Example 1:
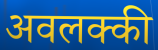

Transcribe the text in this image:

अवलक्की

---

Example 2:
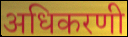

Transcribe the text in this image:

अधिकरणी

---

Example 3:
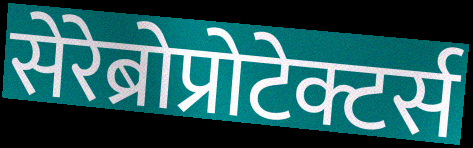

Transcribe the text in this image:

सेरेब्रोप्रोटेक्टर्स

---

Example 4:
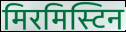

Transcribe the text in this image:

मिरमिस्टिन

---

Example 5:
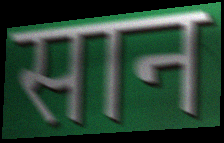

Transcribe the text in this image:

सान